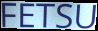
FETSU